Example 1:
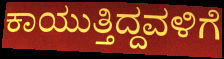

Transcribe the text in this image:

ಕಾಯುತ್ತಿದ್ದವಳಿಗೆ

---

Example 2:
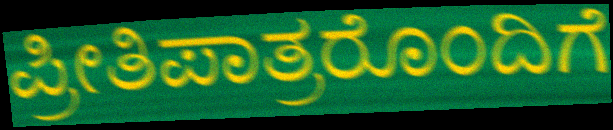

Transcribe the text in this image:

ಪ್ರೀತಿಪಾತ್ರರೊಂದಿಗೆ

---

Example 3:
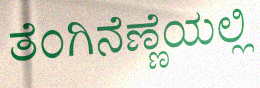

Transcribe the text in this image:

ತೆಂಗಿನೆಣ್ಣೆಯಲ್ಲಿ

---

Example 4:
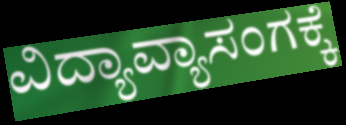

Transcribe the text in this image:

ವಿದ್ಯಾವ್ಯಾಸಂಗಕ್ಕೆ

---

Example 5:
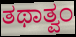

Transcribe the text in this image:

ತಥಾತ್ವಂ